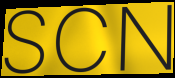
SCN